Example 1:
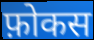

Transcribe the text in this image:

फ़ोकस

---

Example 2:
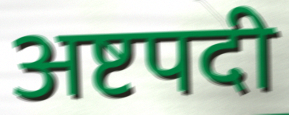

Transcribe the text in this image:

अष्टपदी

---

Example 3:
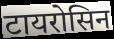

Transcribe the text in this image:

टायरोसिन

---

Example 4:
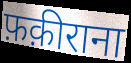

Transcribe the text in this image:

फ़क़ीराना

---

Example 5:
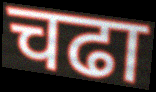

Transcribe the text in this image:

चढा